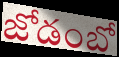
జోడంబో